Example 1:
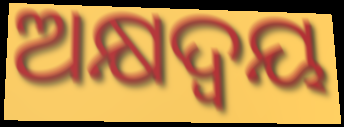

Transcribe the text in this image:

ଅକ୍ଷଦ୍ବୟ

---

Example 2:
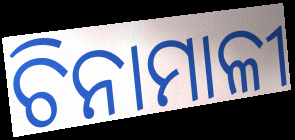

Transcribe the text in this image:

ଚିନାମାଳୀ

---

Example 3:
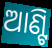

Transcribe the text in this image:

ଆଣ୍ଟି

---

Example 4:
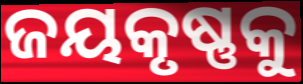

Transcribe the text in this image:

ଜୟକୃଷ୍ଣକୁ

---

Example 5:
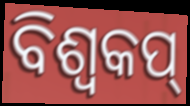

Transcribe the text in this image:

ବିଶ୍ୱକପ୍